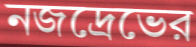
নজদ্রেভের